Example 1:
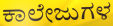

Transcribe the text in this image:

ಕಾಲೇಜುಗಳ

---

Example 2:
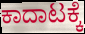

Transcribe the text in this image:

ಕಾದಾಟಕ್ಕೆ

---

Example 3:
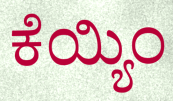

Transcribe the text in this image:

ಕೆಯ್ಯಿಂ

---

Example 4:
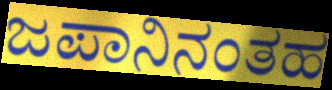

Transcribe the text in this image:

ಜಪಾನಿನಂತಹ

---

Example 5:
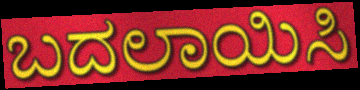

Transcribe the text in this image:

ಬದಲಾಯಿಸಿ